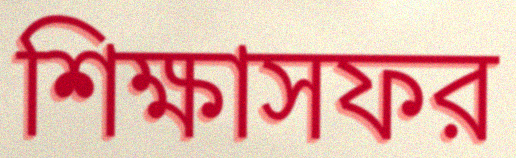
শিক্ষাসফর